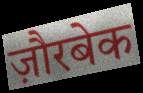
ज़ौरबेक